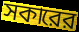
সকারের